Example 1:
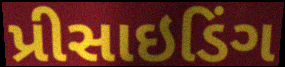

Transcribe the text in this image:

પ્રીસાઇડિંગ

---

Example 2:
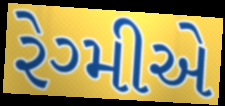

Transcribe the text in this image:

રેગ્મીએ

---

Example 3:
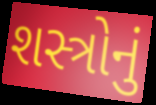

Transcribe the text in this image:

શસ્ત્રોનું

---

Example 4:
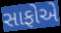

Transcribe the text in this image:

સાફોએ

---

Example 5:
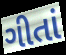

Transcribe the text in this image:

ગીતાં